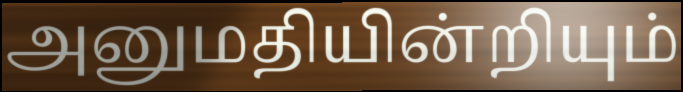
அனுமதியின்றியும்